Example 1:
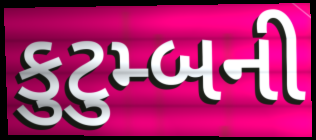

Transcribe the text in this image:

કુટુમ્બની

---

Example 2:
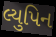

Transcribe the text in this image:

લ્યુપિન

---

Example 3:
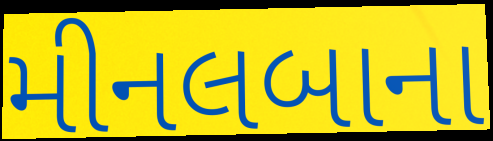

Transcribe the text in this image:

મીનલબાના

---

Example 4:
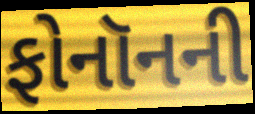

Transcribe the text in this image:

ફોનૉનની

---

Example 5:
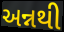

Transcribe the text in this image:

અન્નથી